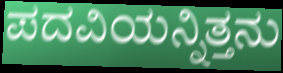
ಪದವಿಯನ್ನಿತ್ತನು